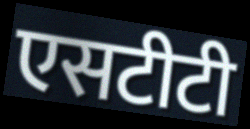
एसटीटी